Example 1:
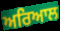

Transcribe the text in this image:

ਅਰਿਆਲ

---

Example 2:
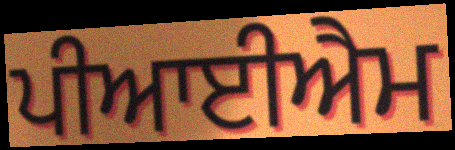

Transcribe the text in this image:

ਪੀਆਈਐਮ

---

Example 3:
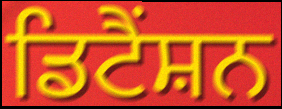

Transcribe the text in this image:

ਡਿਟੈਂਸ਼ਨ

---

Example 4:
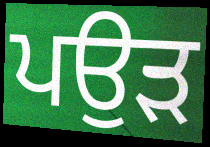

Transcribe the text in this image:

ਪਉੜ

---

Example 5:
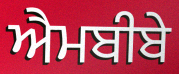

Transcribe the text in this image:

ਐਮਬੀਬੇ